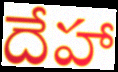
దేహా